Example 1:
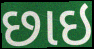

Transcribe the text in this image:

છાઇ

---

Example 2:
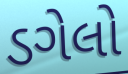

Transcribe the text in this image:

ડગેલો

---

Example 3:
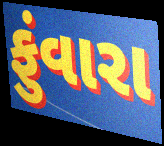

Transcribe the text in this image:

ફુંવારા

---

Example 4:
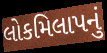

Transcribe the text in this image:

લોકમિલાપનું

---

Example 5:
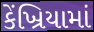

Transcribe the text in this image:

કેંખ્રિયામાં